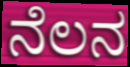
ನೆಲನ